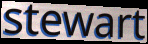
stewart